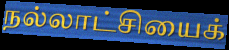
நல்லாட்சியைக்